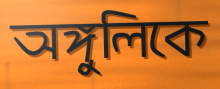
অঙ্গুলিকে